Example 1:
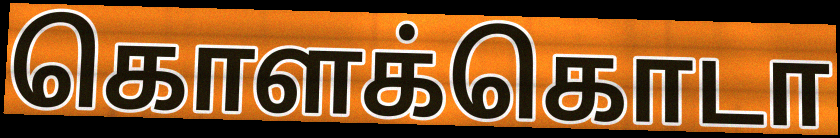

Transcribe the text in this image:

கொளக்கொடா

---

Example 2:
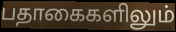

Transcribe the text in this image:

பதாகைகளிலும்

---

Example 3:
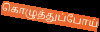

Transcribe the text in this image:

கொழுத்துப்போய்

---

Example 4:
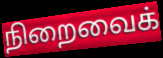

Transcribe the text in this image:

நிறைவைக்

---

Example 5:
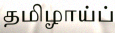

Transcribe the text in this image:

தமிழாய்ப்